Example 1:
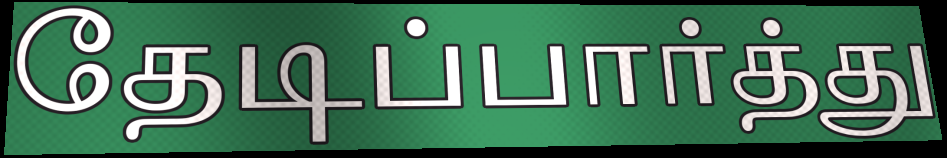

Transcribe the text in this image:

தேடிப்பார்த்து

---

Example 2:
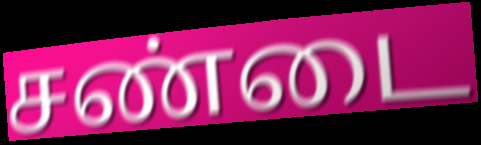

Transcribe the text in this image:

சண்டை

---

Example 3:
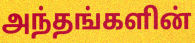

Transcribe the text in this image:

அந்தங்களின்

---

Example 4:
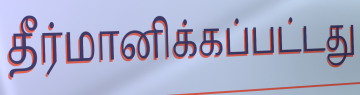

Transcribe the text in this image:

தீர்மானிக்கப்பட்டது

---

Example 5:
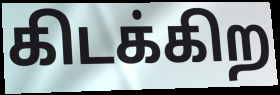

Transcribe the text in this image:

கிடக்கிற